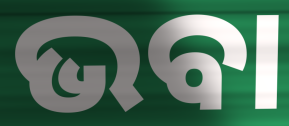
ଭବା